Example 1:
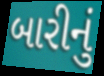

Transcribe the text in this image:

બારીનું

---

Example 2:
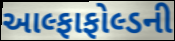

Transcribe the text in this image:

આલ્ફાફોલ્ડની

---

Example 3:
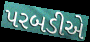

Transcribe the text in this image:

પરબડીએ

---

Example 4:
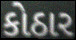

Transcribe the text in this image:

કોઠાર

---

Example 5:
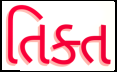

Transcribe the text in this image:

તિક્ત